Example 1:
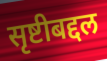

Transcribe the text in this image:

सृष्टीबद्दल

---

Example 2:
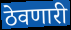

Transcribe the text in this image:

ठेवणारी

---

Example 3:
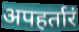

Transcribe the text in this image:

अपहर्तारं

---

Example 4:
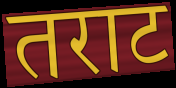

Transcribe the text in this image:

तराट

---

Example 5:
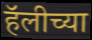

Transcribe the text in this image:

हॅलीच्या